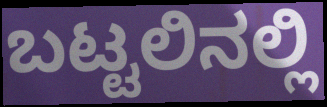
ಬಟ್ಟಲಿನಲ್ಲಿ